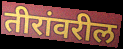
तीरांवरील